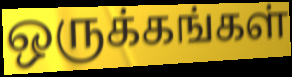
ஒருக்கங்கள்